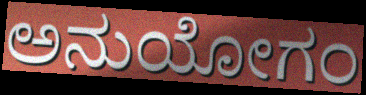
ಅನುಯೋಗಂ